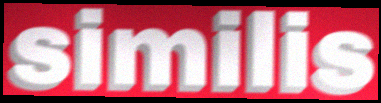
similis